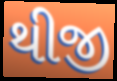
થીજી